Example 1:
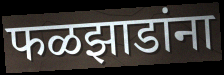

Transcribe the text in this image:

फळझाडांना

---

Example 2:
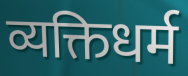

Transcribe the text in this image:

व्यक्तिधर्म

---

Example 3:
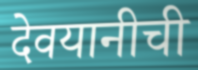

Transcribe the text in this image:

देवयानीची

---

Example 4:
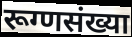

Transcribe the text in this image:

रूग्णसंख्या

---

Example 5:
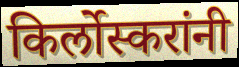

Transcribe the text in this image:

किर्लोस्करांनी